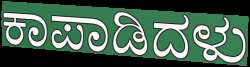
ಕಾಪಾಡಿದಳು